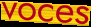
voces